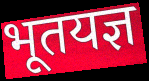
भूतयज्ञ